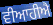
ਵੀਆਹੀਐ